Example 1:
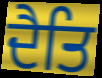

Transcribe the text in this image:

ਦੈਤਿ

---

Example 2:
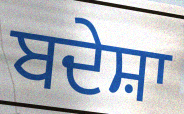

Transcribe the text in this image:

ਬਦੇਸ਼ਾ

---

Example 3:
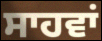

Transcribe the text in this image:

ਸਾਹਵਾਂ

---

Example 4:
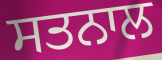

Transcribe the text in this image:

ਸਤਨਾਲ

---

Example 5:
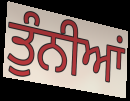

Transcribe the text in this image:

ਤੁੰਨੀਆਂ